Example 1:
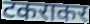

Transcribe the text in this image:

टकराकर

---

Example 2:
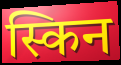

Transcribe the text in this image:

स्किन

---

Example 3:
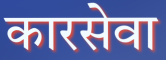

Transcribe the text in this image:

कारसेवा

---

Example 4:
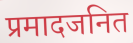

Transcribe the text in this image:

प्रमादजनित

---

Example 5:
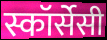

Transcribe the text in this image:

स्कॉर्सेसी